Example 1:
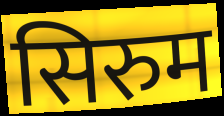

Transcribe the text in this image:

सिरुम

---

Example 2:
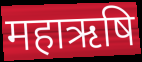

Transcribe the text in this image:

महाऋषि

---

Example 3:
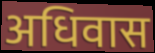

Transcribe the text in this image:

अधिवास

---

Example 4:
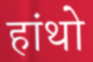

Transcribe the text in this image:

हांथो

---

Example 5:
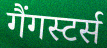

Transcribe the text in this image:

गैंगस्टर्स